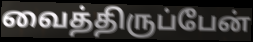
வைத்திருப்பேன்